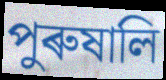
পুৰুষালি